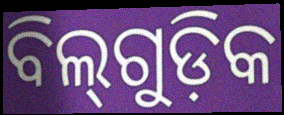
ବିଲ୍‌ଗୁଡ଼ିକ